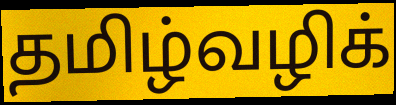
தமிழ்வழிக்